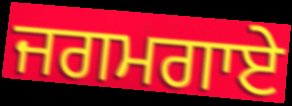
ਜਗਮਗਾਏ